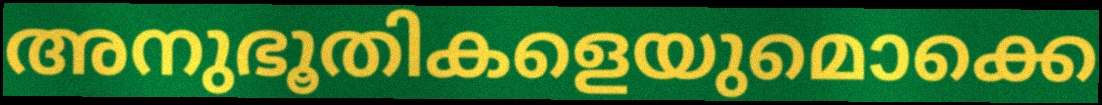
അനുഭൂതികളെയുമൊക്കെ